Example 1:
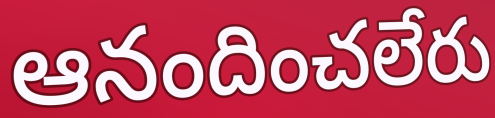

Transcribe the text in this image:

ఆనందించలేరు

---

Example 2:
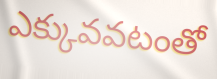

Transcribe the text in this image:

ఎక్కువవటంతో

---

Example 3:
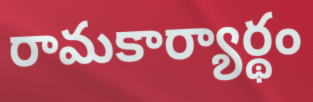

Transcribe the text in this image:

రామకార్యార్థం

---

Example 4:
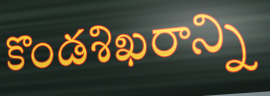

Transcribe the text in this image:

కొండశిఖరాన్ని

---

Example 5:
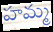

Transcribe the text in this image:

హమ్మ